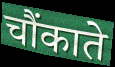
चौंकाते